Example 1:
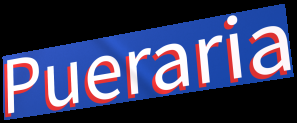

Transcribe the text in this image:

Pueraria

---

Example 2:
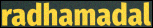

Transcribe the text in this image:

radhamadal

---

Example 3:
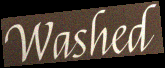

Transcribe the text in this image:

Washed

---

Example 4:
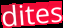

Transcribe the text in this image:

dites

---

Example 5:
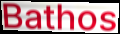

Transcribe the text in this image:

Bathos